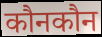
कौनकौन